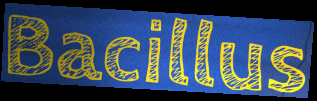
Bacillus